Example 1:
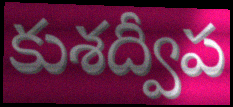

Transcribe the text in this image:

కుశద్వీప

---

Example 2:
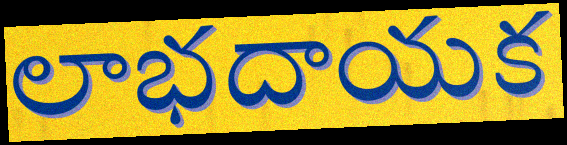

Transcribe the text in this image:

లాభదాయక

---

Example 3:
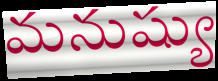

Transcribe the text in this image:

మనుష్యు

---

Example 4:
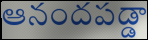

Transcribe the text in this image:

ఆనందపడ్డా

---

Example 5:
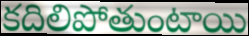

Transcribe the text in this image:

కదిలిపోతుంటాయి